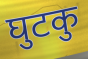
घुटकु